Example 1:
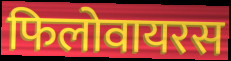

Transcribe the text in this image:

फिलोवायरस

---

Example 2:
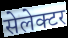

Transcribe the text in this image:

सेलेक्टर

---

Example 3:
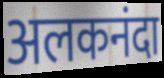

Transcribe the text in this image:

अलकनंदा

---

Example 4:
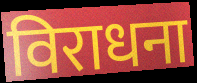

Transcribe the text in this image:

विराधना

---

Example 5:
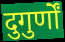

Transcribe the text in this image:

दुगुर्णों